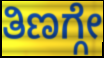
ತಿಣಗ್ಗೇ